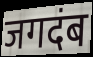
जगदंब